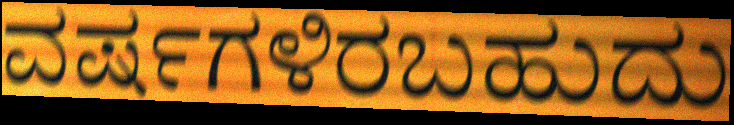
ವರ್ಷಗಳಿರಬಹುದು